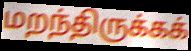
மறந்திருக்கக்